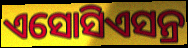
ଏସୋସିଏସନ୍ର